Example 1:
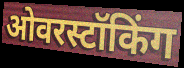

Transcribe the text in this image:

ओवरस्टॉकिंग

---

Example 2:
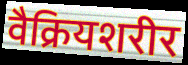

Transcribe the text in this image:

वैक्रियशरीर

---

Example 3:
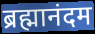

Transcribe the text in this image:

ब्रह्मानंदम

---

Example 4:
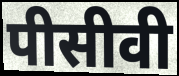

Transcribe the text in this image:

पीसीवी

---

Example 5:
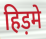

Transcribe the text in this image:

हिड़मे